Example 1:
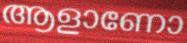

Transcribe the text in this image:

ആളാണോ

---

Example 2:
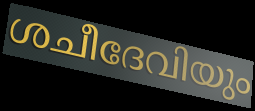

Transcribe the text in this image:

ശചീദേവിയും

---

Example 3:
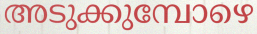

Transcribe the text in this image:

അടുക്കുമ്പോഴെ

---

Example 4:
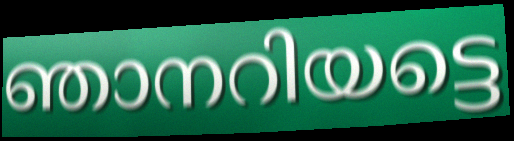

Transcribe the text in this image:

ഞാനറിയട്ടെ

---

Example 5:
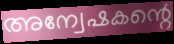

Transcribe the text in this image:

അന്വേഷകന്റെ